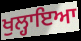
ਖੁਲ੍ਹਾਇਆ